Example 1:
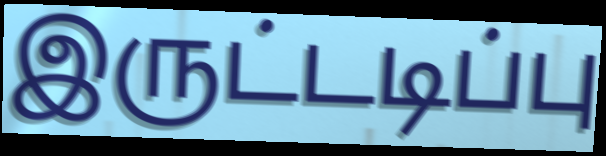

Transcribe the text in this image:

இருட்டடிப்பு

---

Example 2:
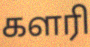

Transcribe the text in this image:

களரி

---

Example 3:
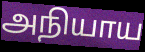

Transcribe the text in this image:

அநியாய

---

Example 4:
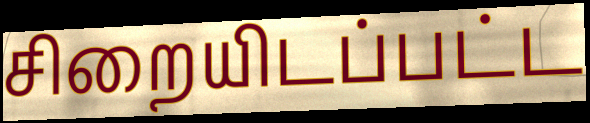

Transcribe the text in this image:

சிறையிடப்பட்ட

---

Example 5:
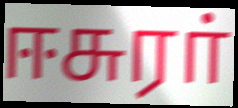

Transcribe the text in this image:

ஈசுரர்